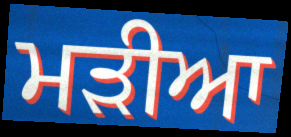
ਮਡ਼ੀਆ